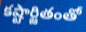
కష్టార్జితంతో